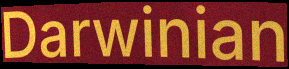
Darwinian